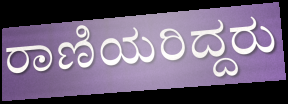
ರಾಣಿಯರಿದ್ದರು